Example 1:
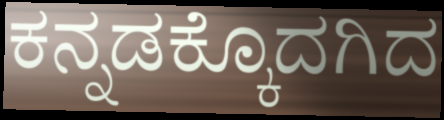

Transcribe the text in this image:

ಕನ್ನಡಕ್ಕೊದಗಿದ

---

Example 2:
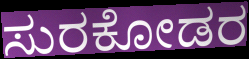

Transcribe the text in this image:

ಸುರಕೋಡರ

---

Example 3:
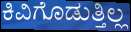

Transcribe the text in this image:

ಕಿವಿಗೊಡುತ್ತಿಲ್ಲ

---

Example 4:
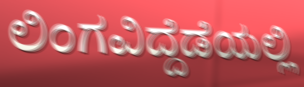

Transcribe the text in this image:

ಲಿಂಗವಿದ್ದೆಡೆಯಲ್ಲಿ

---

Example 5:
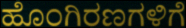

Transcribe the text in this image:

ಹೊಂಗಿರಣಗಳಿಗೆ